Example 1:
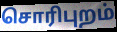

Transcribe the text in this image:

சொரிபுறம்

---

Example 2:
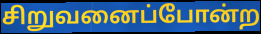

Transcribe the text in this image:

சிறுவனைப்போன்ற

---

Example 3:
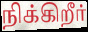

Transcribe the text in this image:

நிக்கிறீர்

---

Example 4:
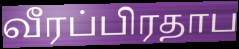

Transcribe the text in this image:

வீரப்பிரதாப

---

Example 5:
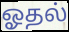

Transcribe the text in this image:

ஓதல்